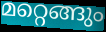
മറ്റെങ്ങും